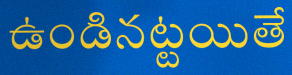
ఉండినట్టయితే